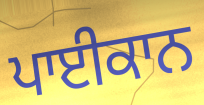
ਪਾਈਕਾਨ